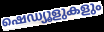
ഷെഡ്യൂളുകളും